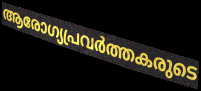
ആരോഗ്യപ്രവർത്തകരുടെ